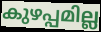
കുഴപ്പമില്ല